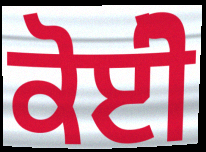
ਕੋਈੋ